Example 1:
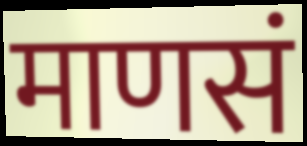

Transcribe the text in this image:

माणसं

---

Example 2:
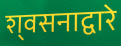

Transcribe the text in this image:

श्वसनाद्वारे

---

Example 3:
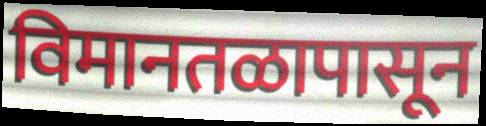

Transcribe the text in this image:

विमानतळापासून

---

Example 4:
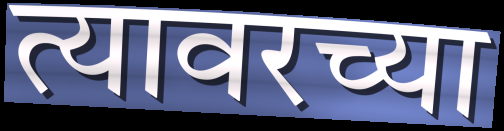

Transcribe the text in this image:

त्यावरच्या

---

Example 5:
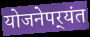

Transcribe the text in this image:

योजनेपर्यंत